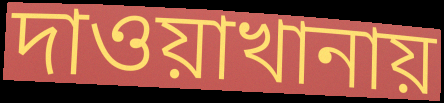
দাওয়াখানায়